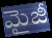
మైజీ